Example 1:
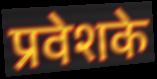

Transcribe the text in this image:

प्रवेशके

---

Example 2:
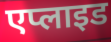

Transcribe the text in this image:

एप्लाइड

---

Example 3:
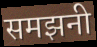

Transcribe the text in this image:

समझनी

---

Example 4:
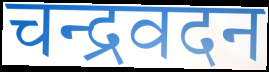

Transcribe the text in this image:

चन्द्रवदन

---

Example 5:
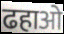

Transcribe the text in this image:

ढहाओ